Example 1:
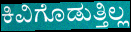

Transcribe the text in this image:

ಕಿವಿಗೊಡುತ್ತಿಲ್ಲ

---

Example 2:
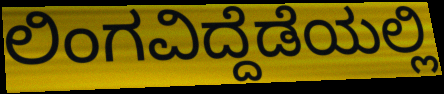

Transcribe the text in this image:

ಲಿಂಗವಿದ್ದೆಡೆಯಲ್ಲಿ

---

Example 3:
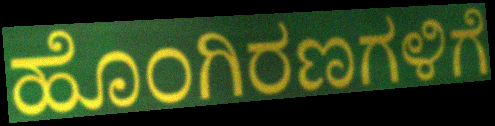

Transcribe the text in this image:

ಹೊಂಗಿರಣಗಳಿಗೆ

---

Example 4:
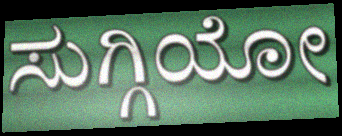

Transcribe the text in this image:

ಸುಗ್ಗಿಯೋ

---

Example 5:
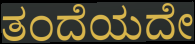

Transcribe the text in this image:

ತಂದೆಯದೇ